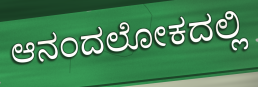
ಆನಂದಲೋಕದಲ್ಲಿ